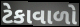
ટેકાવાળો